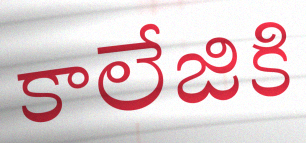
కాలేజికి